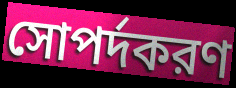
সোপর্দকরণ